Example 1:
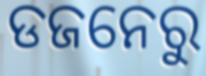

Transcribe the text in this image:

ଡଜନେରୁ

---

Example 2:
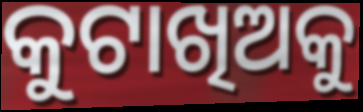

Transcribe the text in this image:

କୁଟାଖିଅକୁ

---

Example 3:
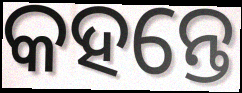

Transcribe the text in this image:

କହନ୍ତେ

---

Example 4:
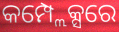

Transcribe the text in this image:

କମ୍ପ୍ଲେକ୍ସରେ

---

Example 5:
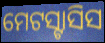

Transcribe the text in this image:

ମେଟସ୍ଟାସିସ